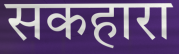
सकहारा